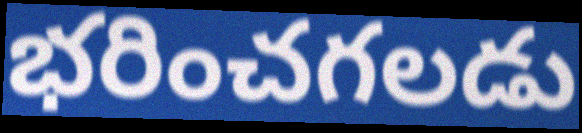
భరించగలడు